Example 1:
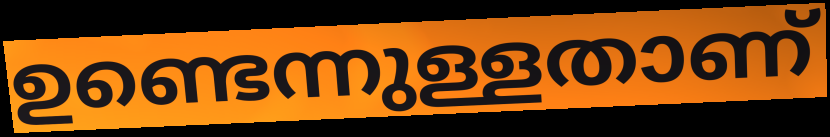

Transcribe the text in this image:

ഉണ്ടെന്നുള്ളതാണ്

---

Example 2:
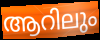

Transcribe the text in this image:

ആറിലും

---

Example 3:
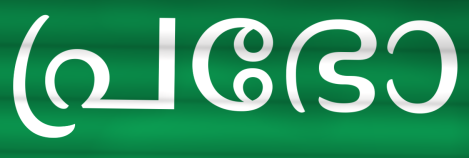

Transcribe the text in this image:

പ്രഭോ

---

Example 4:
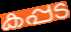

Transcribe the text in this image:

കപ്പട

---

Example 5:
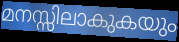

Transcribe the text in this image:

മനസ്സിലാകുകയും